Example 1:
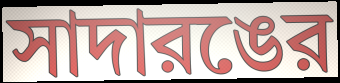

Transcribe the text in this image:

সাদারঙের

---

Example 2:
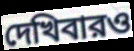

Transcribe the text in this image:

দেখিবারও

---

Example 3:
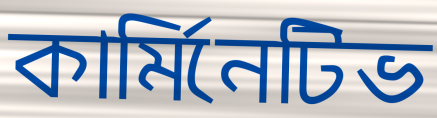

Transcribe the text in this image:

কার্মিনেটিভ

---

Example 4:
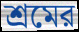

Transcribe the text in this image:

শ্রমের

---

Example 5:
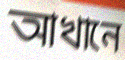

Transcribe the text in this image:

আখানে